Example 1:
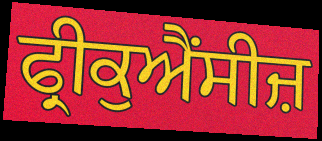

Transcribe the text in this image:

ਫ੍ਰੀਕੁਐਂਸੀਜ਼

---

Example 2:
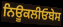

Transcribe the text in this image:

ਨਿਊਕਲੀਓਬੇਸ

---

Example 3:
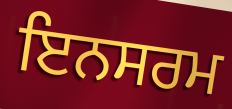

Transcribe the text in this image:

ਇਨਸਰਮ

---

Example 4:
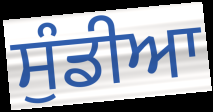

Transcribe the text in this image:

ਸੁੰਡੀਆ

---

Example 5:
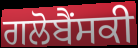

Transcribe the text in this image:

ਗਲੋਬੈਂਸਕੀ